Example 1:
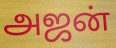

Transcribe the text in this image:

அஜன்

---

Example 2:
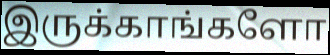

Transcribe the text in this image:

இருக்காங்களோ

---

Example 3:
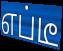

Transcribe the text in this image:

எப்டீ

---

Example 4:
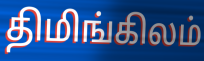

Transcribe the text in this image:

திமிங்கிலம்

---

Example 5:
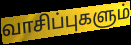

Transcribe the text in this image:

வாசிப்புகளும்